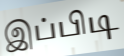
இப்பிடி